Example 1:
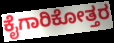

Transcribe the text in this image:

ಕೈಗಾರಿಕೋತ್ತರ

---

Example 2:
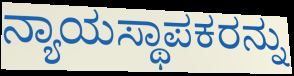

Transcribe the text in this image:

ನ್ಯಾಯಸ್ಥಾಪಕರನ್ನು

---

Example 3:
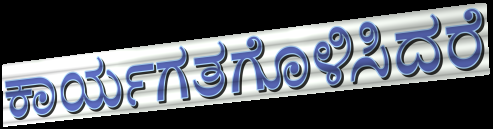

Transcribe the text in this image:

ಕಾರ್ಯಗತಗೊಳಿಸಿದರೆ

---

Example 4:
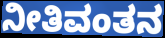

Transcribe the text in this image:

ನೀತಿವಂತನ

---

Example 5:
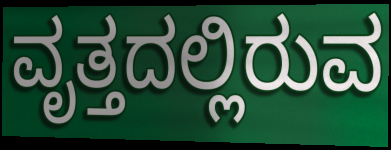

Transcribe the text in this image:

ವೃತ್ತದಲ್ಲಿರುವ